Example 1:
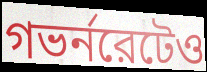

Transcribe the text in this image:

গভর্নরেটেও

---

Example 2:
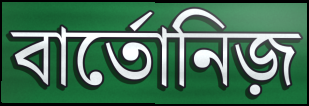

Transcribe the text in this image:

বার্তোনিজ়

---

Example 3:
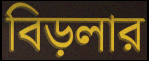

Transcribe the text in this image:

বিড়লার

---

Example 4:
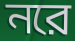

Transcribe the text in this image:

নরে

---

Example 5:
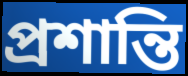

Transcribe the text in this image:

প্রশান্তি